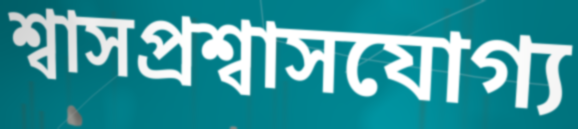
শ্বাসপ্রশ্বাসযোগ্য